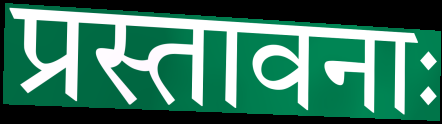
प्रस्तावनाः